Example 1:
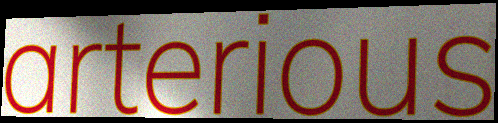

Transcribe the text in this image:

arterious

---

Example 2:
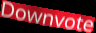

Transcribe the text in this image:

Downvote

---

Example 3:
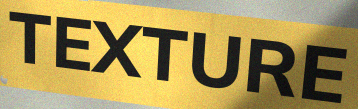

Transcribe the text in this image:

TEXTURE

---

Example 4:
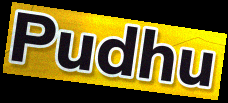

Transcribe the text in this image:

Pudhu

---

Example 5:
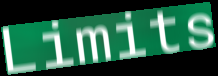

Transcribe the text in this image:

Limits